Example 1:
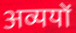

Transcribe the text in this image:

अव्ययों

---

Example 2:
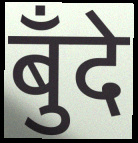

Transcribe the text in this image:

बुँदे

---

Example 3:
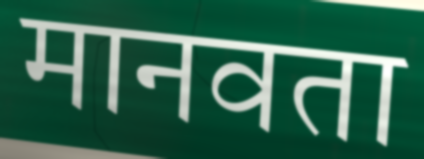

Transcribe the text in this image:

मानवता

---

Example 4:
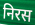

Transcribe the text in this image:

निरस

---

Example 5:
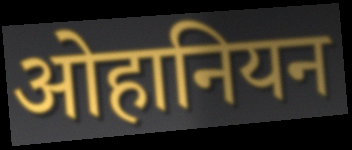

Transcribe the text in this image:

ओहानियन